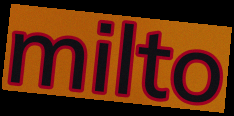
milto